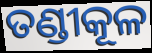
ତଣ୍ଡୀକୂଳ